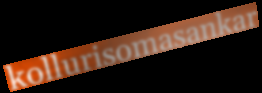
kollurisomasankar